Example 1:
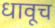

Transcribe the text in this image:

धावूच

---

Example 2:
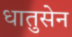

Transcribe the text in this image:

धातुसेन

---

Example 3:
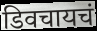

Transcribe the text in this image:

डिवचायचं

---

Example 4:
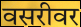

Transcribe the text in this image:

वसरीवर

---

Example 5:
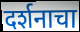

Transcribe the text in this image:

दर्शनाचा